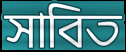
সাবিত